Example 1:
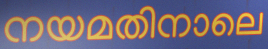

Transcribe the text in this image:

നയമതിനാലെ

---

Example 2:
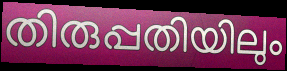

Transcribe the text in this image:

തിരുപ്പതിയിലും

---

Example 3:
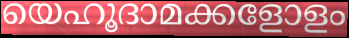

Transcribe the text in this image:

യെഹൂദാമക്കളോളം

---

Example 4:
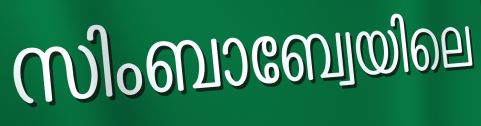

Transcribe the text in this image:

സിംബാബ്വേയിലെ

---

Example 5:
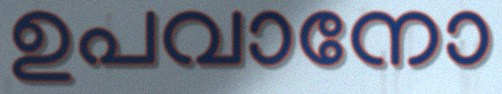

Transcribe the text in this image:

ഉപവാനോ